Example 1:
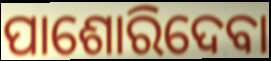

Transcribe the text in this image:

ପାଶୋରିଦେବା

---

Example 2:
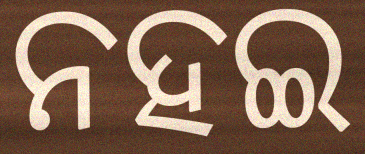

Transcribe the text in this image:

ନହଇ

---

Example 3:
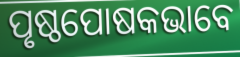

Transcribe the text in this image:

ପୃଷ୍ଠପୋଷକଭାବେ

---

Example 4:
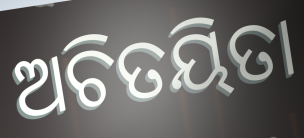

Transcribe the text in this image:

ଅଚିତୟିତା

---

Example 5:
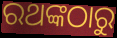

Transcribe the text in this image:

ରଥଙ୍କଠାରୁ